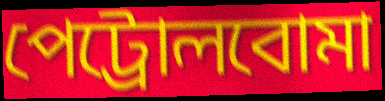
পেট্রোলবোমা